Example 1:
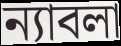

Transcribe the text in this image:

ন্যাবলা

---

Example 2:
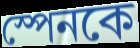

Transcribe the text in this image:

স্পেনকে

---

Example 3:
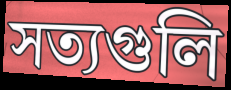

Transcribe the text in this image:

সত্যগুলি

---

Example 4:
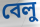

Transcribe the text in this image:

বেলু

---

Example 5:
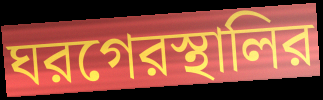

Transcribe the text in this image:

ঘরগেরস্থালির